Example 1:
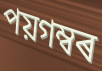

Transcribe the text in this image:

পয়গম্বৰ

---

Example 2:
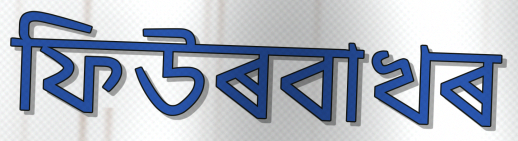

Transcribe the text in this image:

ফিউৰবাখৰ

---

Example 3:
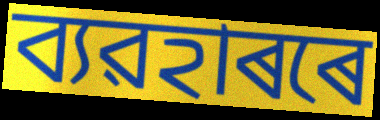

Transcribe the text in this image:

ব্যৱহাৰৰে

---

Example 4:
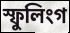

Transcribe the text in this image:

স্ফুলিংগ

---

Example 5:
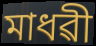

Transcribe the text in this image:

মাধৱী